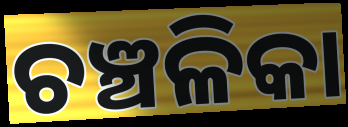
ଚଞ୍ଚଳିକା